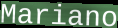
Mariano